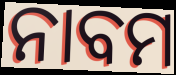
ନାବମ